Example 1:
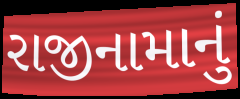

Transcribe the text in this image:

રાજીનામાનું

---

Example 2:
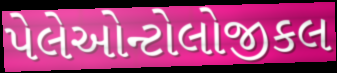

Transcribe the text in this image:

પેલેઓન્ટોલોજીકલ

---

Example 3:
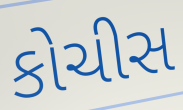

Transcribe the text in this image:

કોચીસ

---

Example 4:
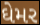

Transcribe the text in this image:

ઘેમર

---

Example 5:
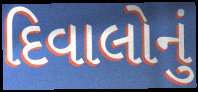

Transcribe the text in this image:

દિવાલોનું